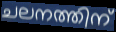
ചലനത്തിന്